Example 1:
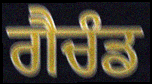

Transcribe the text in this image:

ਗੈਚੰਡ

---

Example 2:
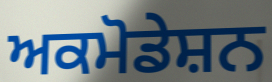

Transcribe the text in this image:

ਅਕਮੋਡੇਸ਼ਨ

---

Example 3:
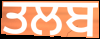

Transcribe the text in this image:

ਤਲਬ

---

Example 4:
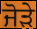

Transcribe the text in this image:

ਜੋੜੇ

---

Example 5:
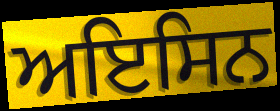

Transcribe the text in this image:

ਅਇਸਿਨ